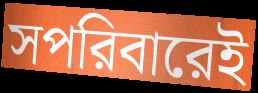
সপরিবারেই